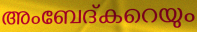
അംബേദ്കറെയും